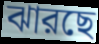
ঝারছে